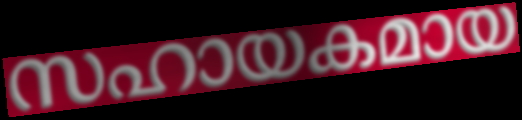
സഹായകമായ